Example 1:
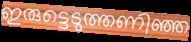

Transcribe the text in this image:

ഇരുട്ടെടുത്തണിഞ്ഞ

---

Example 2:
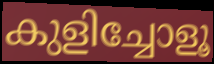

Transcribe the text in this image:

കുളിച്ചോളൂ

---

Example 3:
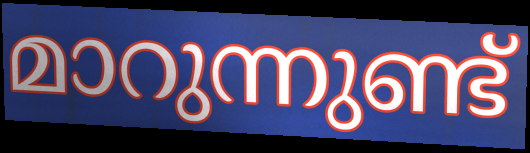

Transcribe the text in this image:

മാറുന്നുണ്ട്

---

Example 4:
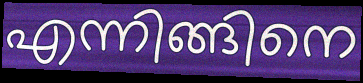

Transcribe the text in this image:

എന്നിങ്ങിനെ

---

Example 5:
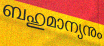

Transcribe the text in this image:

ബഹുമാന്യനും